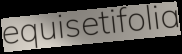
equisetifolia